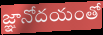
జ్ఞానోదయంతో